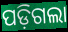
ପଡ଼ିଗଲା